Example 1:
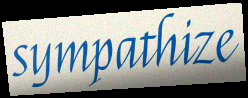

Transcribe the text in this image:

sympathize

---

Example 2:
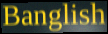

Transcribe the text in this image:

Banglish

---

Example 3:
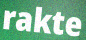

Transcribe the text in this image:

rakte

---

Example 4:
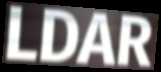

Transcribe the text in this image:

LDAR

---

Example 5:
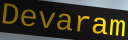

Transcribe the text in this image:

Devaram